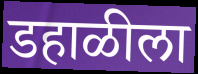
डहाळीला